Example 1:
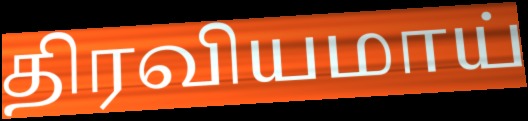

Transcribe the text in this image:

திரவியமாய்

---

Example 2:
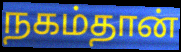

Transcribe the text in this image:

நகம்தான்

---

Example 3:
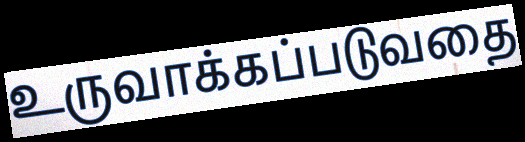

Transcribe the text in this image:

உருவாக்கப்படுவதை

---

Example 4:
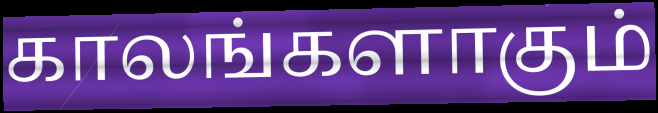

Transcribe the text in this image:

காலங்களாகும்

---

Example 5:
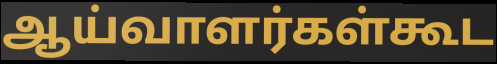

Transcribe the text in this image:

ஆய்வாளர்கள்கூட